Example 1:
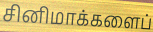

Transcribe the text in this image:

சினிமாக்களைப்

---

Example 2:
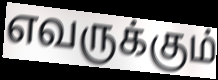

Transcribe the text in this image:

எவருக்கும்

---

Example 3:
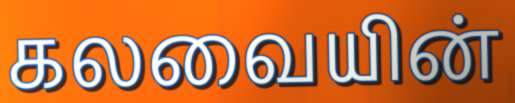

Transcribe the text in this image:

கலவையின்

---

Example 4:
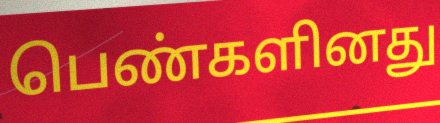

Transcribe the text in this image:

பெண்களினது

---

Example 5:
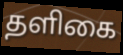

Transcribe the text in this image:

தளிகை